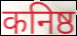
कनिष्ठ